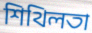
শিথিলতা